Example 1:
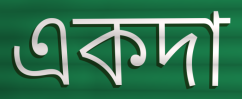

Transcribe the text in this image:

একদা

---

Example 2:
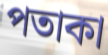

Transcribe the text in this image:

পতাকা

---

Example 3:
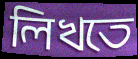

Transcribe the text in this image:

লিখতে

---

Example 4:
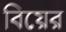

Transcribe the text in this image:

বিয়ের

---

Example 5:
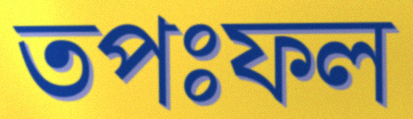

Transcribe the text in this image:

তপঃফল